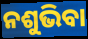
ନଶୁଭିବା